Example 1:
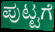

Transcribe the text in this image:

ಪುಟ್ಟಗೆ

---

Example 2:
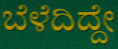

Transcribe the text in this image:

ಬೆಳೆದಿದ್ದೇ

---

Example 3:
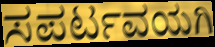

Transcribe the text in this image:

ಸಪರ್ಟವಯಗಿ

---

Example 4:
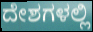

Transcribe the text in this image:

ದೇಶಗಳಲ್ಲಿ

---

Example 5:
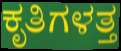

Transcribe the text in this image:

ಕೃತಿಗಳತ್ತ